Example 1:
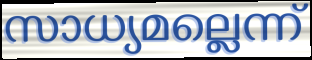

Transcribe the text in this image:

സാധ്യമല്ലെന്ന്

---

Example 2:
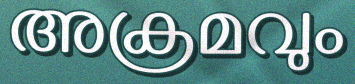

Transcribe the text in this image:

അക്രമവും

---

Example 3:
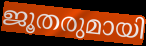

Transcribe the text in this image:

ജൂതരുമായി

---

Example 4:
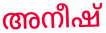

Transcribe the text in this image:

അനീഷ്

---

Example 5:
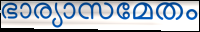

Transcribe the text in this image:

ഭാര്യാസമേതം